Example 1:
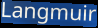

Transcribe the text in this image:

Langmuir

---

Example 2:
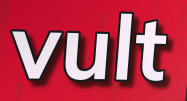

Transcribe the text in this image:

vult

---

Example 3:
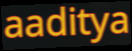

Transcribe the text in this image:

aaditya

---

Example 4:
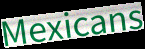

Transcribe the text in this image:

Mexicans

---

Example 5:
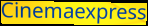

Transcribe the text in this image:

Cinemaexpress